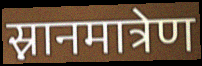
स्नानमात्रेण